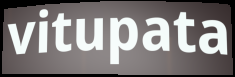
vitupata